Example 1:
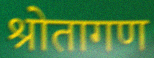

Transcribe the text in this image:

श्रोतागण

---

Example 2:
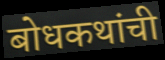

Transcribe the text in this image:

बोधकथांची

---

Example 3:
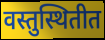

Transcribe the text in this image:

वस्तुस्थितीत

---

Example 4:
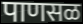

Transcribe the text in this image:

पाणसळ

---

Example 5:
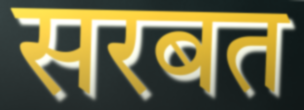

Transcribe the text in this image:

सरबत